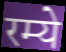
रम्ये